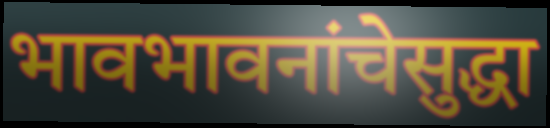
भावभावनांचेसुद्धा